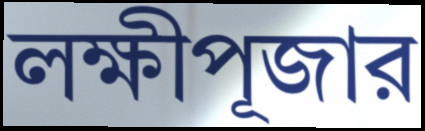
লক্ষীপূজার